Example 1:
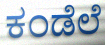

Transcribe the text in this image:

ಕಂಡೆಲೆ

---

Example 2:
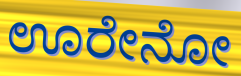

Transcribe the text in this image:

ಊರೇನೋ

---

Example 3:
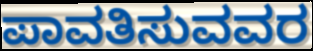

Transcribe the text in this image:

ಪಾವತಿಸುವವರ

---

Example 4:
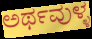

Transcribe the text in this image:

ಅರ್ಥವುಳ್ಳ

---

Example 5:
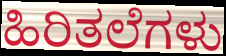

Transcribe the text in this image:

ಹಿರಿತಲೆಗಳು